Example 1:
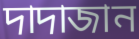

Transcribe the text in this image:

দাদাজান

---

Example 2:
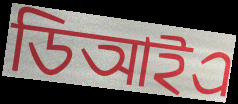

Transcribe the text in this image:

ডিআইএ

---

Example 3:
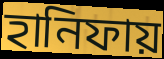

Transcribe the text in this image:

হানিফায়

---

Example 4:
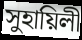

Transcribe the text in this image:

সুহায়িলী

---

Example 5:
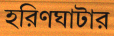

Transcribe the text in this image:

হরিণঘাটার